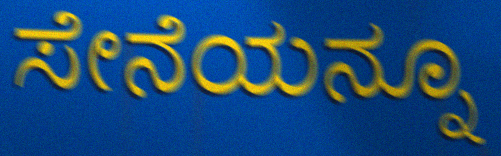
ಸೇನೆಯನ್ನೂ